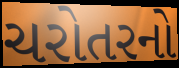
ચરોતરનો